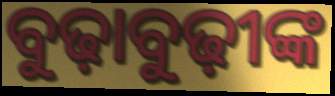
ବୁଢ଼ାବୁଢ଼ୀଙ୍କ